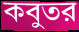
কবুতর